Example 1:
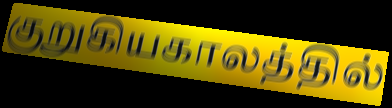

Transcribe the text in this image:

குறுகியகாலத்தில்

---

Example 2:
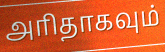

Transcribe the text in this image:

அரிதாகவும்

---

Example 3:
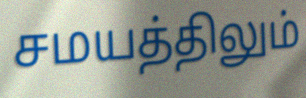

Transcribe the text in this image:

சமயத்திலும்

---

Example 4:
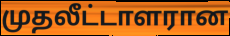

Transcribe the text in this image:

முதலீட்டாளரான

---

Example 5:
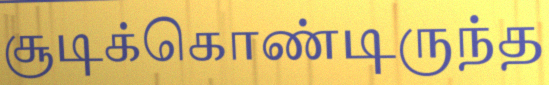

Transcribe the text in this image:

சூடிக்கொண்டிருந்த